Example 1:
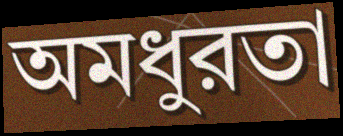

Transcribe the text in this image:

অমধুরতা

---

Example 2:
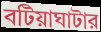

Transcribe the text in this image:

বটিয়াঘাটার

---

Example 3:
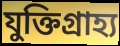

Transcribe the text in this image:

যুক্তিগ্রাহ্য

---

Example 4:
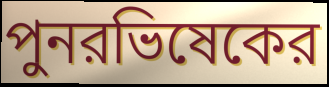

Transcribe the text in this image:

পুনরভিষেকের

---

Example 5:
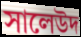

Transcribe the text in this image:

সালেউদ